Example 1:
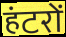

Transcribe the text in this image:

हंटरों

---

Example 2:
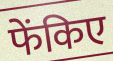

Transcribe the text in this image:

फेंकिए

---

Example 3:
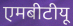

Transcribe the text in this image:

एमबीटीयू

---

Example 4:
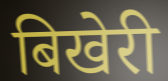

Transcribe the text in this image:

बिखेरी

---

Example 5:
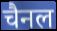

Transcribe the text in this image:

चैनल